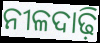
ନୀଳଦାଢ଼ି